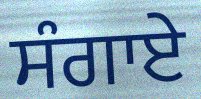
ਸੰਗਾਏ